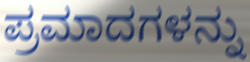
ಪ್ರಮಾದಗಳನ್ನು